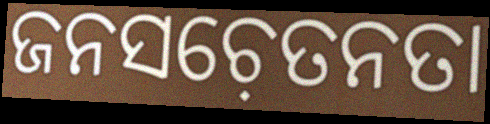
ଜନସଚ଼େତନତା